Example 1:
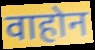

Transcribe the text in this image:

वाहोन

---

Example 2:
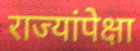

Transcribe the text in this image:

राज्यांपेक्षा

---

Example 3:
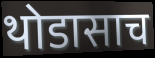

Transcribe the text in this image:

थोडासाच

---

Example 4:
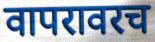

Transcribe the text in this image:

वापरावरच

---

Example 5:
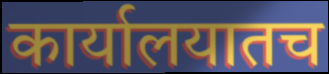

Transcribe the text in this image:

कार्यालयातच